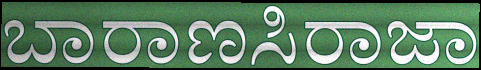
ಬಾರಾಣಸಿರಾಜಾ